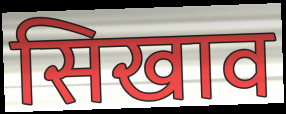
सिखाव